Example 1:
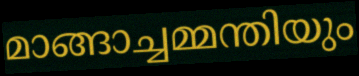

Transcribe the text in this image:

മാങ്ങാച്ചമ്മന്തിയും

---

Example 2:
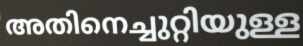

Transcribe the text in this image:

അതിനെച്ചുറ്റിയുള്ള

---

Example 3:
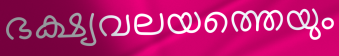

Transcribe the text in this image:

ഭക്ഷ്യവലയത്തെയും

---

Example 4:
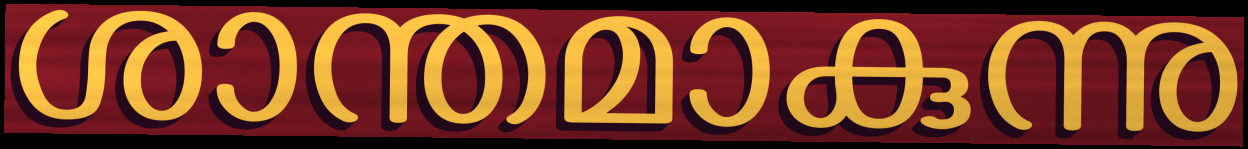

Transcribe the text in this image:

ശാന്തമാകുന്നു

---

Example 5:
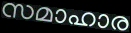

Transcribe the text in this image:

സമാഹാര